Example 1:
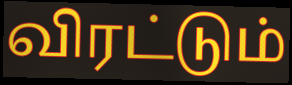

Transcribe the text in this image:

விரட்டும்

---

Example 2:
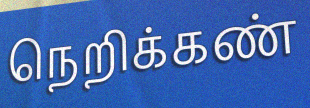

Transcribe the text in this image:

நெறிக்கண்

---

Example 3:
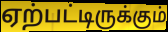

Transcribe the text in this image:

ஏற்பட்டிருக்கும்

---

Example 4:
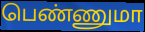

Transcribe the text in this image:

பெண்ணுமா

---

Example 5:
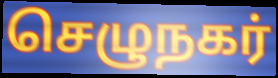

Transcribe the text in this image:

செழுநகர்